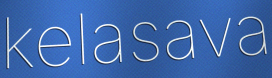
kelasava